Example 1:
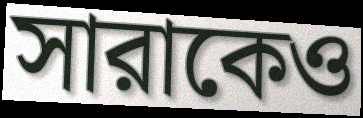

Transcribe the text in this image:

সারাকেও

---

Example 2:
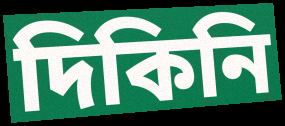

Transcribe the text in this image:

দিকিনি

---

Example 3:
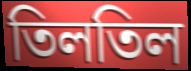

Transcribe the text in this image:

তিলতিল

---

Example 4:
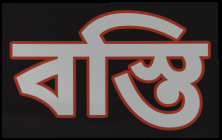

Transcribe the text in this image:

বস্তি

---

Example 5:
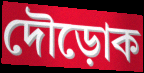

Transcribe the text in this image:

দৌড়োক